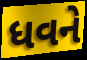
ધવને